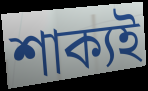
শাক্যই